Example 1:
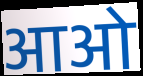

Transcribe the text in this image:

आओ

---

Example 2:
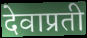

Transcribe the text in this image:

देवाप्रती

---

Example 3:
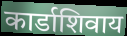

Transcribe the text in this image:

कार्डाशिवाय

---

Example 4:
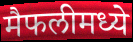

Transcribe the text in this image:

मैफलीमध्ये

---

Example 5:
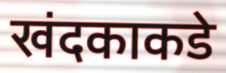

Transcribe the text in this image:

खंदकाकडे